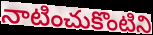
నాటించుకొంటిని